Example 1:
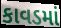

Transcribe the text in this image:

કાવડમાં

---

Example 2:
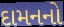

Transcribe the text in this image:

દામનનો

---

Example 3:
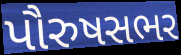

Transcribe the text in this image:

પૌરુષસભર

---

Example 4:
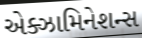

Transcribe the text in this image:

એક્ઝામિનેશન્સ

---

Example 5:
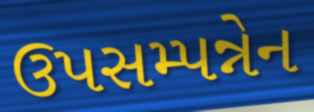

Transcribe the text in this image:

ઉપસમ્પન્નેન